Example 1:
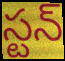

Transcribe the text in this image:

స్టన్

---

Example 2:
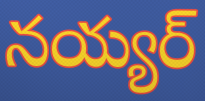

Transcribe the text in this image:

నయ్యర్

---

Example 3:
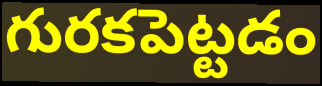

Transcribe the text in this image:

గురకపెట్టడం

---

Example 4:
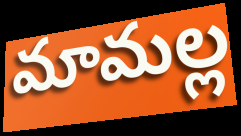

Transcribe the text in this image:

మామల్ల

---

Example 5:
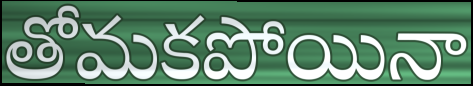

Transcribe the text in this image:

తోమకపోయినా